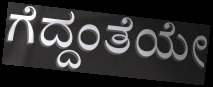
ಗೆದ್ದಂತೆಯೇ